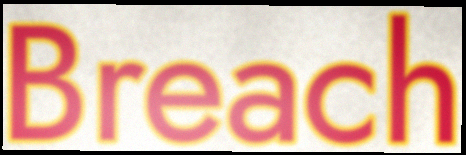
Breach